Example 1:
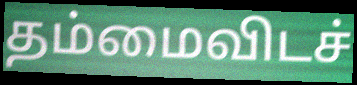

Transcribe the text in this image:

தம்மைவிடச்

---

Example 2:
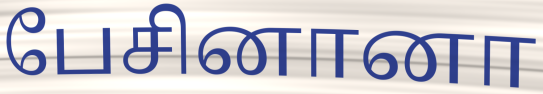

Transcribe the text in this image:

பேசினானா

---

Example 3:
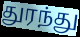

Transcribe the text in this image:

துரந்து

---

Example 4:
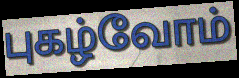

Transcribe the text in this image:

புகழ்வோம்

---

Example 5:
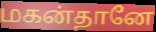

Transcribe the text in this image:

மகன்தானே